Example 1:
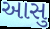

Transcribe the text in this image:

આસુ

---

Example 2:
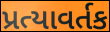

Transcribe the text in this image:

પ્રત્યાવર્તક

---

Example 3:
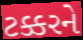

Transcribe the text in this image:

ટક્કરને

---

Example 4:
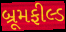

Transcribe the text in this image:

બ્રૂમફીલ્ડ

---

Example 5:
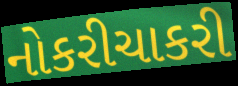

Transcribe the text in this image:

નોકરીચાકરી